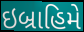
ઇબ્રાહિમે